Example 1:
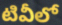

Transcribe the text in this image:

టివీలో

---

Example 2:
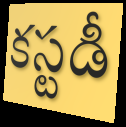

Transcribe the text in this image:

కస్టడీ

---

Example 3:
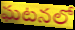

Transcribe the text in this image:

ఘటనలో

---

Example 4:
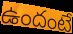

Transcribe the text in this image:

ఉందంటే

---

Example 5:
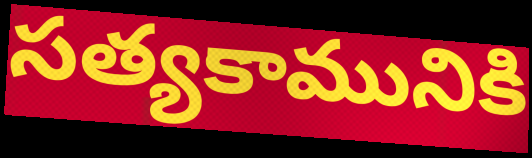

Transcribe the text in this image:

సత్యకామునికి